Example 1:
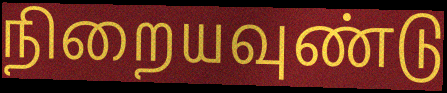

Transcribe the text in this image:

நிறையவுண்டு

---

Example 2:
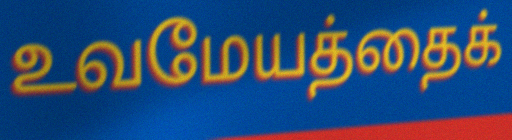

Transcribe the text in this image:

உவமேயத்தைக்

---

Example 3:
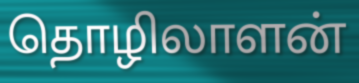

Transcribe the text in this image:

தொழிலாளன்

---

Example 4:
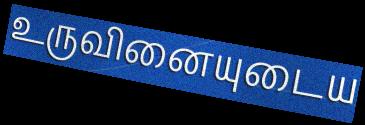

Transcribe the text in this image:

உருவினையுடைய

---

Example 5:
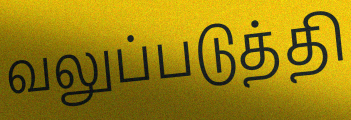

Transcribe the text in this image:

வலுப்படுத்தி